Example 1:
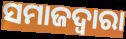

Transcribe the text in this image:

ସମାଜଦ୍ଵାରା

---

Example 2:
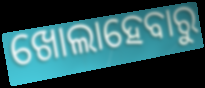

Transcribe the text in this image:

ଖୋଲାହେବାରୁ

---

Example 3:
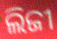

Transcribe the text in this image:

ଲିଜୀ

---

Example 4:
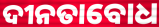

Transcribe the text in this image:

ଦୀନତାବୋଧ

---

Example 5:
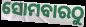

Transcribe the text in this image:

ସୋମବାରଠୁ